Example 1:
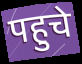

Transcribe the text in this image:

पहुचे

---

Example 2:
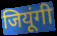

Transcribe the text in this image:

जियूंगी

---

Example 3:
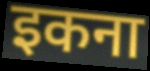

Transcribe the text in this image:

इकना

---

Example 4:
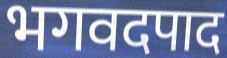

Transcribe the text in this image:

भगवदपाद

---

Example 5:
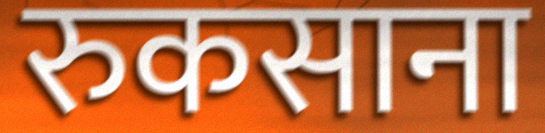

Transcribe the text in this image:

रुकसाना